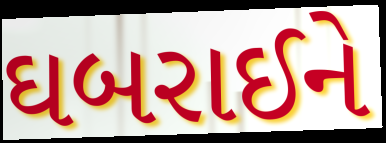
ઘબરાઈને